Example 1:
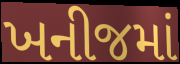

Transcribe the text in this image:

ખનીજમાં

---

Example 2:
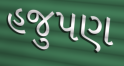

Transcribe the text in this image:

હજુપણ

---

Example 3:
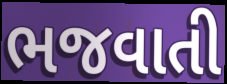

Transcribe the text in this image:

ભજવાતી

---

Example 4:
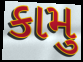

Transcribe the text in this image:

કામુ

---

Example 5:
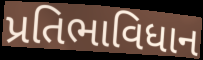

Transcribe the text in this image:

પ્રતિભાવિધાન